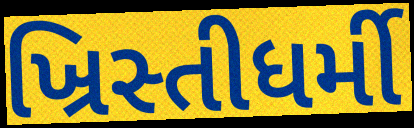
ખ્રિસ્તીધર્મી